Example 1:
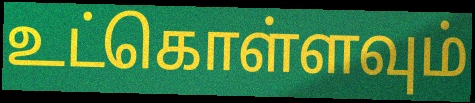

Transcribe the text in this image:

உட்கொள்ளவும்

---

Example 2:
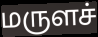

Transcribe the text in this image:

மருளச்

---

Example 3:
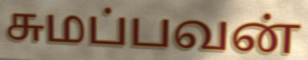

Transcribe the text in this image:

சுமப்பவன்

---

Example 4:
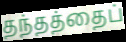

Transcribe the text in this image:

தந்தத்தைப்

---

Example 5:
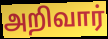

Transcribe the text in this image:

அறிவார்